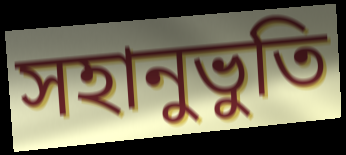
সহানুভুতি